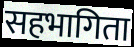
सहभागिता